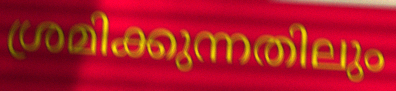
ശ്രമിക്കുന്നതിലും